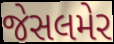
જેસલમેર